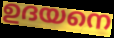
ഉദയനെ